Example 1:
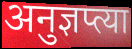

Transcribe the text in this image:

अनुज्ञप्त्या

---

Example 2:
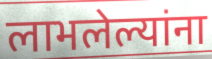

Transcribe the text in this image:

लाभलेल्यांना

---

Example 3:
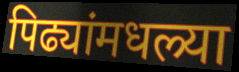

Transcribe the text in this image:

पिढ्यांमधल्या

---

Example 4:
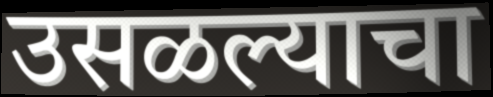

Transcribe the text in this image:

उसळल्याचा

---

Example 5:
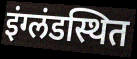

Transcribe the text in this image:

इंग्लंडस्थित